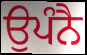
ਉਪੰਨੈ